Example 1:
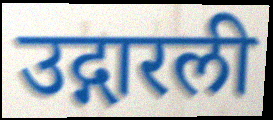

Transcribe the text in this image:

उद्गारली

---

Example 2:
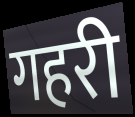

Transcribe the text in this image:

गहरी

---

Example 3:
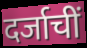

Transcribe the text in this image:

दर्जाचीं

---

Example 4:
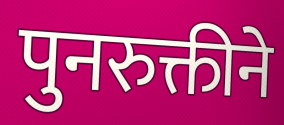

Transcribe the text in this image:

पुनरुक्तीने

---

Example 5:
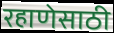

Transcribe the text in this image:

रहाणेसाठी